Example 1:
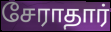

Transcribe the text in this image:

சேராதார்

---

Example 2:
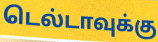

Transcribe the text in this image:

டெல்டாவுக்கு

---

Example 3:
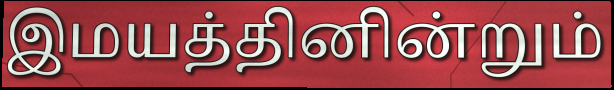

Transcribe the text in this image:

இமயத்தினின்றும்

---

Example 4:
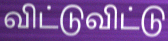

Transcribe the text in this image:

விட்டுவிட்டு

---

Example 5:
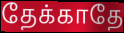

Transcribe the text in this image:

தேக்காதே